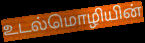
உடல்மொழியின்